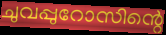
ചുവപ്പുറോസിന്റെ